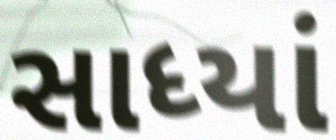
સાધ્યાં